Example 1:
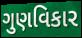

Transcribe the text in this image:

ગુણવિકાર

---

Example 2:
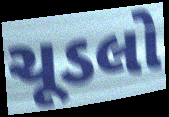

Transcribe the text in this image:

ચૂડલો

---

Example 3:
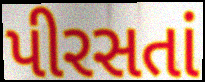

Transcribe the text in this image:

પીરસતાં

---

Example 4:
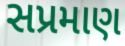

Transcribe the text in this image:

સપ્રમાણ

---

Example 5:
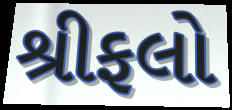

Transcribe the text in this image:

શ્રીફલો